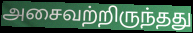
அசைவற்றிருந்தது